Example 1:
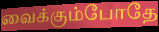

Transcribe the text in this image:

வைக்கும்போதே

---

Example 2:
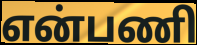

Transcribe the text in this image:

என்பணி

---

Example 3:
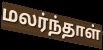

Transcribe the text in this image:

மலர்ந்தாள்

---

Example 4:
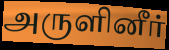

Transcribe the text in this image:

அருளினீர்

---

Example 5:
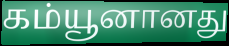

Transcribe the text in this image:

கம்யூனானது